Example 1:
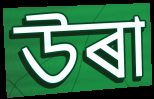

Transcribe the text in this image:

উৰা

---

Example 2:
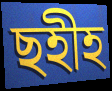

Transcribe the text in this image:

ছহীহ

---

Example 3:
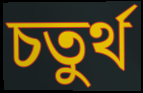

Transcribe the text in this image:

চতুৰ্থ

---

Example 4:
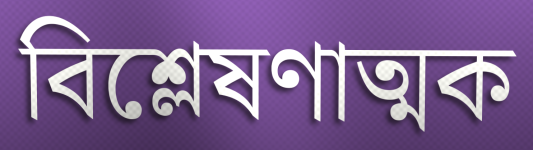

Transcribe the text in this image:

বিশ্লেষণাত্মক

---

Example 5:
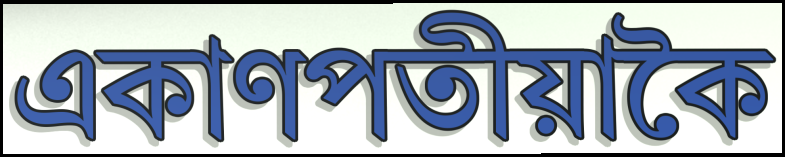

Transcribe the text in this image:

একাণপতীয়াকৈ